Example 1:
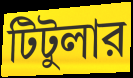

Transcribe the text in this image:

টিটুলার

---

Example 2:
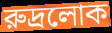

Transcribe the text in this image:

রুদ্রলোক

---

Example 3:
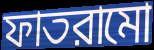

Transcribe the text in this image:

ফাতরামো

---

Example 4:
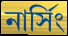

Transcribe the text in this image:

নার্সিং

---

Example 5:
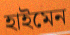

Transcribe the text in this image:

হাইমেন